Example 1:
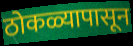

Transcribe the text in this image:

ठोकळ्यापासून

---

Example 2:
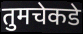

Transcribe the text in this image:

तुमचेकडे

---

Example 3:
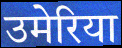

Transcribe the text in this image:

उमेरिया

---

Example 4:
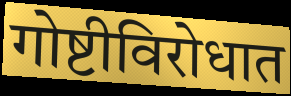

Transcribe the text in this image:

गोष्टीविरोधात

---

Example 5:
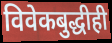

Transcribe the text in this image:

विवेकबुद्धीही